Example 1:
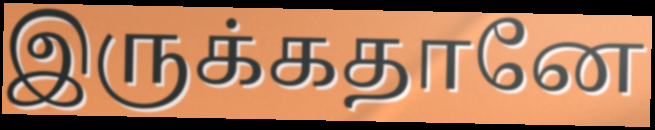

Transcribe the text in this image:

இருக்கதானே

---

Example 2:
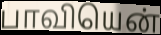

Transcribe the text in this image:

பாவியென்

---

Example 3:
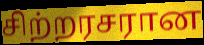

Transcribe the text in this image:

சிற்றரசரான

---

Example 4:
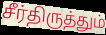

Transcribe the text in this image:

சீர்திருத்தும்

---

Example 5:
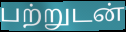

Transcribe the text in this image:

பற்றுடன்